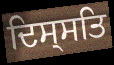
ਦਿਸ੍ਸਤਿ